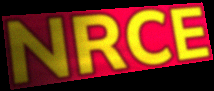
NRCE